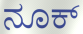
ನೂಕ್